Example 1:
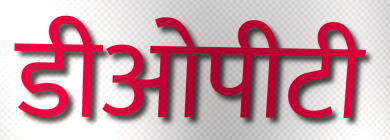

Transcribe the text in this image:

डीओपीटी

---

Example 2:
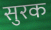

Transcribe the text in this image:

सुरक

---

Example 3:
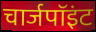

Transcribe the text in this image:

चार्जपॉइंट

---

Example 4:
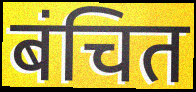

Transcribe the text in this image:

बंचित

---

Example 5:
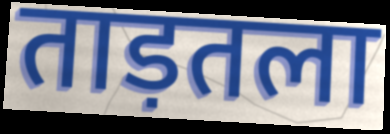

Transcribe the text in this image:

ताड़तला